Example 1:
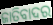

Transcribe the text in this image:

ଜାତିବାଦର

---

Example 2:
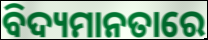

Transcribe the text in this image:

ବିଦ୍ୟମାନତାରେ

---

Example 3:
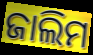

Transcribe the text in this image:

ଜାଲିମ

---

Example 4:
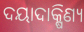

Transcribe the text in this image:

ଦୟାଦାକ୍ଷିଣ୍ୟ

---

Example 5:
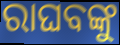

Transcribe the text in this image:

ରାଘବଙ୍କୁ